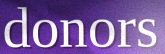
donors